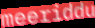
meeriddu